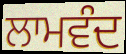
ਲਾਮਵੰਦ